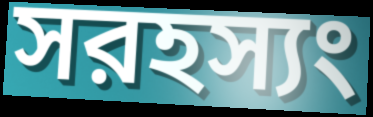
সরহস্যং